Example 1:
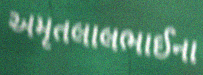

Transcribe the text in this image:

અમૃતલાલભાઈના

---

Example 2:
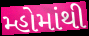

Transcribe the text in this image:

મ્હોમાંથી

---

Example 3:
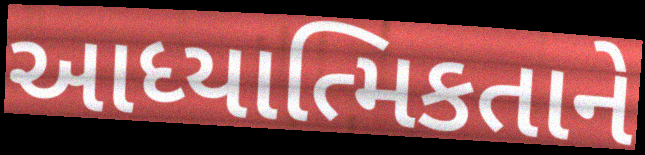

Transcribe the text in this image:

આધ્યાત્મિકતાને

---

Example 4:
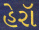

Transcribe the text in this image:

હેરૉ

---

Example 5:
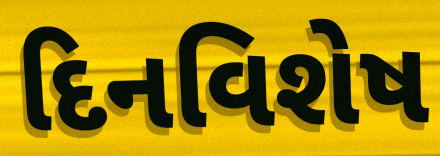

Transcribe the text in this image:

દિનવિશેષ